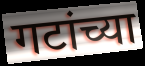
गटांच्या